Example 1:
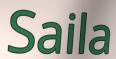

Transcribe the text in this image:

Saila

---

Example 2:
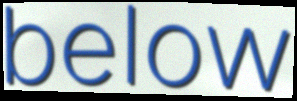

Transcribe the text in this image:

below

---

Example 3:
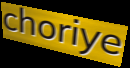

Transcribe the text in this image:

choriye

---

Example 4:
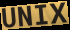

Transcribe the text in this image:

UNIX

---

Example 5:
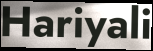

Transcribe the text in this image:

Hariyali